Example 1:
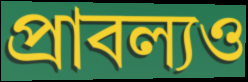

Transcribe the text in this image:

প্রাবল্যও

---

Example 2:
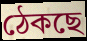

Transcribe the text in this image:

ঠেকছে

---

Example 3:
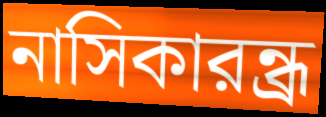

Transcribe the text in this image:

নাসিকারন্ধ্র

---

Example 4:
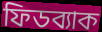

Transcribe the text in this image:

ফিডব্যাক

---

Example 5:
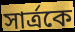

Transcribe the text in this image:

সার্ত্রকে